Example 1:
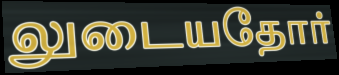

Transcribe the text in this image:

லுடையதோர்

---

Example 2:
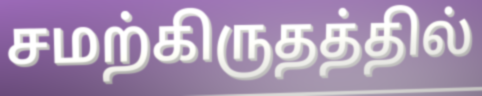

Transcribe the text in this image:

சமற்கிருதத்தில்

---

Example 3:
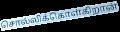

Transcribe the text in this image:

சொல்லிக்கொள்கிறான்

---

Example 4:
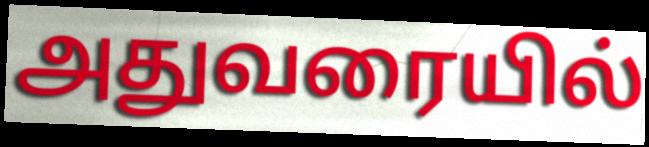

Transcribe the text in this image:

அதுவரையில்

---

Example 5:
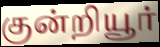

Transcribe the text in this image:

குன்றியூர்